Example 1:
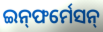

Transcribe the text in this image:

ଇନ୍‍ଫର୍ମେସନ୍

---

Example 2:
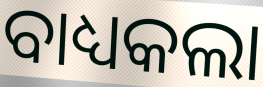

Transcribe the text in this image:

ବାଧ୍ୟକଲା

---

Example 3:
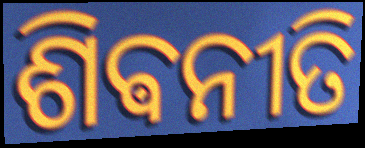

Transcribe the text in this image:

ଶିଵନୀତି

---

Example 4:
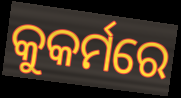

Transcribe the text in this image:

କୁକର୍ମରେ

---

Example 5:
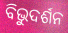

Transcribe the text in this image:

ବିଭୁଦର୍ଶନ